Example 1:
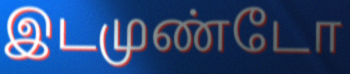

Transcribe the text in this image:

இடமுண்டோ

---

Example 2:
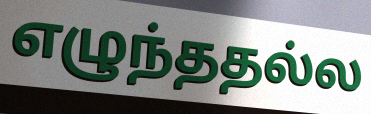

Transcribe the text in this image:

எழுந்ததல்ல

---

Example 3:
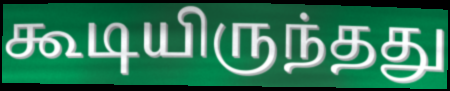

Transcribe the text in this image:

கூடியிருந்தது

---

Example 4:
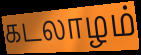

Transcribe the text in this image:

கடலாழம்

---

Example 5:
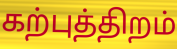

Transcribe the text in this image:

கற்புத்திறம்